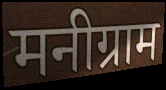
मनीग्राम